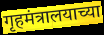
गृहमंत्रालयाच्या